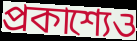
প্রকাশ্যেও